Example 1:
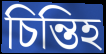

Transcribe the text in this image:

চিন্তিহ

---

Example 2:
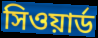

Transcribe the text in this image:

সিওয়ার্ড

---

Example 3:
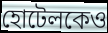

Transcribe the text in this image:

হোটেলকেও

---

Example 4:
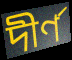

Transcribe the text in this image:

দীর্ণ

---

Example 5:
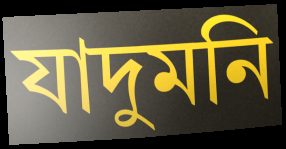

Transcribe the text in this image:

যাদুমনি